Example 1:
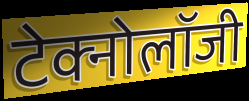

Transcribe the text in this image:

टेक्‍नोलॉजी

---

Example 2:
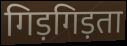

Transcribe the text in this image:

गिड़गिड़ता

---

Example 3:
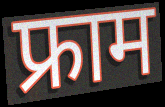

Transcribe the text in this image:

फ्राम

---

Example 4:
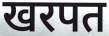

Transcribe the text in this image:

खरपत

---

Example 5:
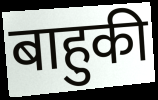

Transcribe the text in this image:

बाहुकी